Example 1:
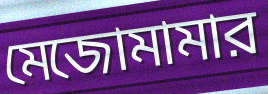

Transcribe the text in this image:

মেজোমামার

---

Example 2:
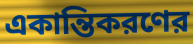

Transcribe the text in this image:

একান্তিকরণের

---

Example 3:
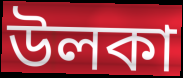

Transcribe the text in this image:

উলকা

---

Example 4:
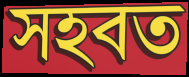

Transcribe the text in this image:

সহবত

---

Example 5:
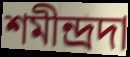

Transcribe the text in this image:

শমীন্দ্রদা